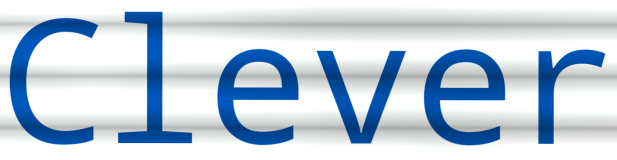
Clever